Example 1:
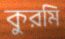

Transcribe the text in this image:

কুরমি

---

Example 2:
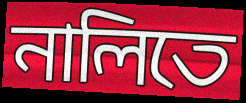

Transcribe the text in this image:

নালিতে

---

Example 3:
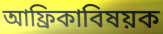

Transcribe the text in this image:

আফ্রিকাবিষয়ক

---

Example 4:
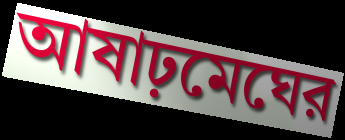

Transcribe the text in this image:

আষাঢ়মেঘের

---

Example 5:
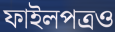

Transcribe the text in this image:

ফাইলপত্রও